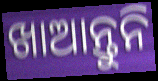
ଖାଆନ୍ତୁନି